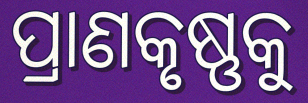
ପ୍ରାଣକୃଷ୍ଣକୁ